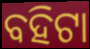
ବହିଟା